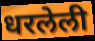
धरलेली